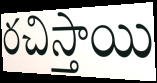
రచిస్తాయి